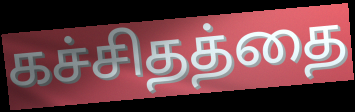
கச்சிதத்தை